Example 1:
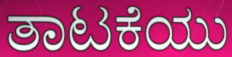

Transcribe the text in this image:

ತಾಟಕೆಯು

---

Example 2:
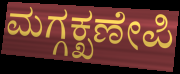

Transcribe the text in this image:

ಮಗ್ಗಕ್ಖಣೇಪಿ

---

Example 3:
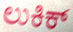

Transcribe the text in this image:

ಲುಕಿಕ್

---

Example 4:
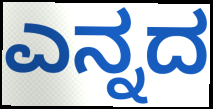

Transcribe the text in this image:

ಎನ್ನದ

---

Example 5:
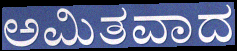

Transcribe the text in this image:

ಅಮಿತವಾದ